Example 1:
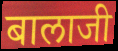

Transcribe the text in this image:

बालाजी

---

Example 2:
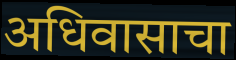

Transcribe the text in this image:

अधिवासाचा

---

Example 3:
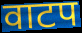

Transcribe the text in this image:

वाटप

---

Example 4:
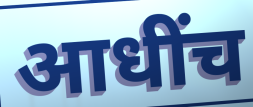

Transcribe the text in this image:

आधींच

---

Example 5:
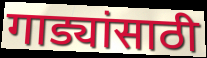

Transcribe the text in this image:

गाड्यांसाठी